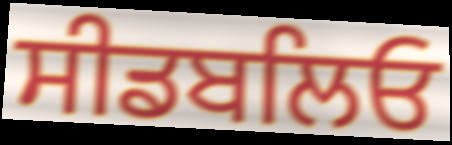
ਸੀਡਬਲਿਓ